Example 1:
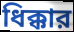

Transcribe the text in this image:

ধিক্কার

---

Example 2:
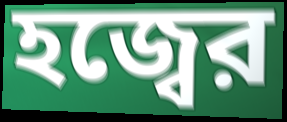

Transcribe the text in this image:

হজ্বের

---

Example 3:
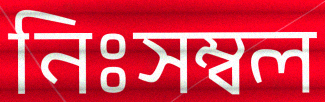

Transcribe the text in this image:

নিঃসম্বল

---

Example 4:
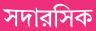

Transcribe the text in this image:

সদারসিক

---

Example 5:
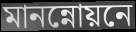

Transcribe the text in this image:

মানন্নোয়নে